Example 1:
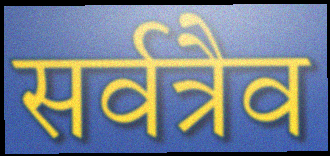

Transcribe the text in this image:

सर्वत्रैव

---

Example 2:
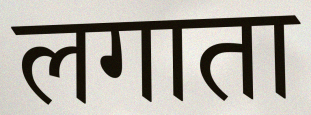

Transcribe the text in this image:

लगाता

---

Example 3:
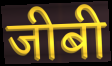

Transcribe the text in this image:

जीबी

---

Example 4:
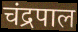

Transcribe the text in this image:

चंद्रपाल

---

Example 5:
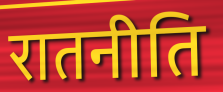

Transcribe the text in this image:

रातनीति